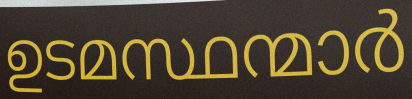
ഉടമസ്ഥന്മാർ